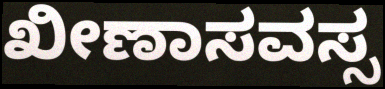
ಖೀಣಾಸವಸ್ಸ